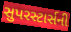
સુપરસ્ટાર્સની